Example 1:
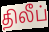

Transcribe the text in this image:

திலீப்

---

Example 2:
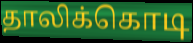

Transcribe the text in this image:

தாலிக்கொடி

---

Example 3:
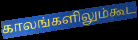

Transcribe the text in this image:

காலங்களிலும்கூட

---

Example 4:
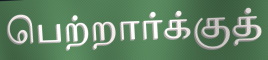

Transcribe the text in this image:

பெற்றார்க்குத்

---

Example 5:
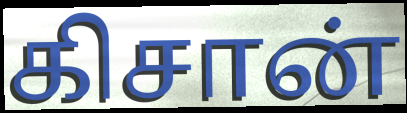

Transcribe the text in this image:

கிசான்